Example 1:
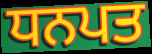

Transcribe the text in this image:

ਧਨਪਤ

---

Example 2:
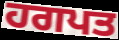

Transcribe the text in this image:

ਹਗਪਤ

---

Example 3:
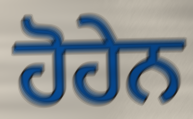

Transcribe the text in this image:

ਹੋਹੇਨ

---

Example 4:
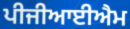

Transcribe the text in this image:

ਪੀਜੀਆਈਐਮ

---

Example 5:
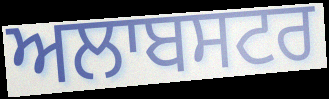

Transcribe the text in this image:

ਅਲਾਬਸਟਰ